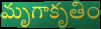
మృగాకృతిం